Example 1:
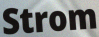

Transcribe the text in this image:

Strom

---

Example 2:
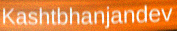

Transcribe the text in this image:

Kashtbhanjandev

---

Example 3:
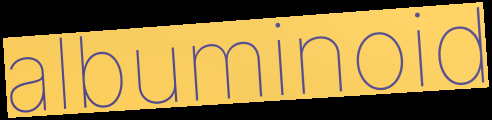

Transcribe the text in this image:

albuminoid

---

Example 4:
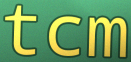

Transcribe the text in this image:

tcm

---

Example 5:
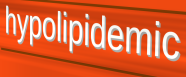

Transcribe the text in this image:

hypolipidemic